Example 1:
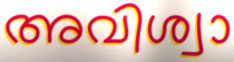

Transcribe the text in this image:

അവിശ്വാ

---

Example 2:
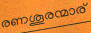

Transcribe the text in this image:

രണശൂരന്മാര്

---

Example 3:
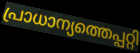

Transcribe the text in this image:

പ്രാധാന്യത്തെപ്പറ്റി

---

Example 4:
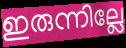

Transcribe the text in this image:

ഇരുന്നില്ലേ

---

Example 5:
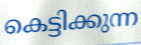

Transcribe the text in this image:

കെട്ടിക്കുന്ന